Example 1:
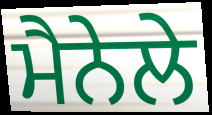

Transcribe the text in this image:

ਮੈਨੇਲੇ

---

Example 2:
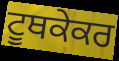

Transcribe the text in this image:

ਟੂਥਕੇਕਰ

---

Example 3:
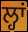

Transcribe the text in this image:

ਲ੍ਹਾਂ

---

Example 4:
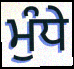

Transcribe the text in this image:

ਮੁੰਧੇ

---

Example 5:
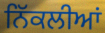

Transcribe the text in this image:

ਨਿੱਕਲੀਆਂ